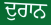
ਦੁਰਾਨ